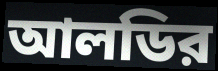
আলডির